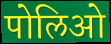
पोलिओ